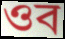
ওব